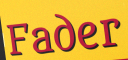
Fader